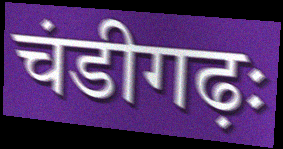
चंडीगढ़ः